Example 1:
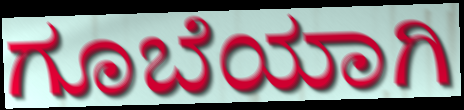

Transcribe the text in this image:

ಗೂಬೆಯಾಗಿ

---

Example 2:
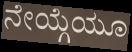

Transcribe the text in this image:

ನೇಯ್ಗೆಯೂ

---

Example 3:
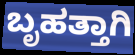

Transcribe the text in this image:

ಬೃಹತ್ತಾಗಿ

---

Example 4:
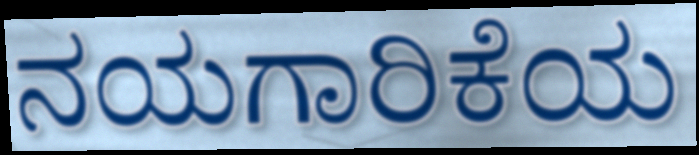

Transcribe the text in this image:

ನಯಗಾರಿಕೆಯ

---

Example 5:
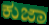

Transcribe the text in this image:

ಕುಜಾ